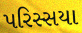
પરિસ્સયા